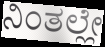
ನಿಂತಲ್ಲೇ